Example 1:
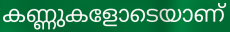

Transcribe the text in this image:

കണ്ണുകളോടെയാണ്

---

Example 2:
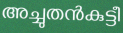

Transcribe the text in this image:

അച്ചുതൻകുട്ടീ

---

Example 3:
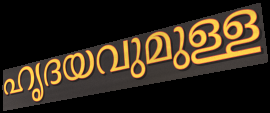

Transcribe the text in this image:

ഹൃദയവുമുള്ള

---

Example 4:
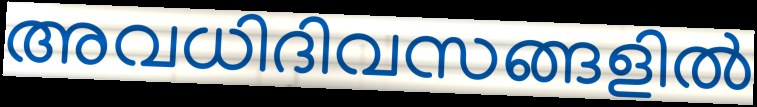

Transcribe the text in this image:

അവധിദിവസങ്ങളിൽ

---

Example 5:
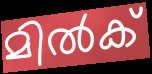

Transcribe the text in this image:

മിൽക്